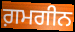
ਗ਼ਮਗੀਨ